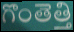
గొంతెత్తి